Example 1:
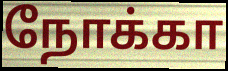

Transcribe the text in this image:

நோக்கா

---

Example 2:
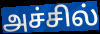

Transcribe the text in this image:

அச்சில்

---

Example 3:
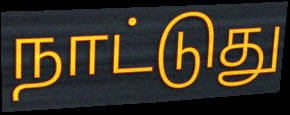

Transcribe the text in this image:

நாட்டுது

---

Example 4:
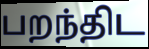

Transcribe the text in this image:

பறந்திட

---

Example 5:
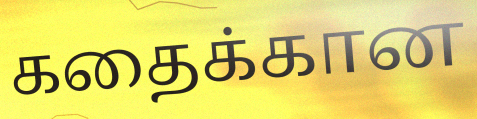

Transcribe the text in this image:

கதைக்கான